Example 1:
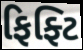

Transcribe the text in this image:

ફિફ્ટિ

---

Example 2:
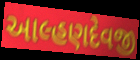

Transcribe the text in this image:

આલ્હણદેવજી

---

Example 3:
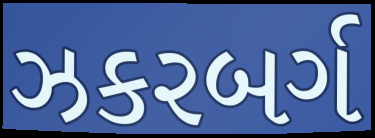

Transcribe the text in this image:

ઝકરબર્ગ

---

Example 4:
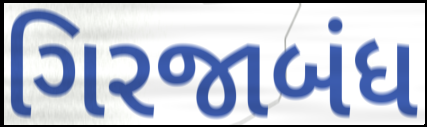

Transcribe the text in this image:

ગિરજાબંધ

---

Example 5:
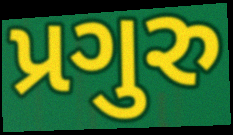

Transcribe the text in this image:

પ્રગુરુ